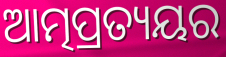
ଆତ୍ମପ୍ରତ୍ୟୟର